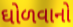
ઘોળવાનો